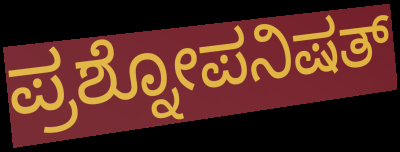
ಪ್ರಶ್ನೋಪನಿಷತ್